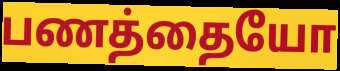
பணத்தையோ